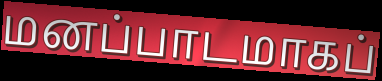
மனப்பாடமாகப்